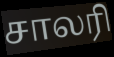
சாலரி